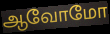
ஆவோமோ